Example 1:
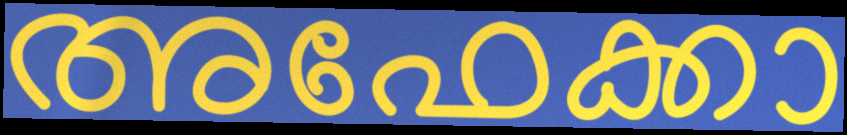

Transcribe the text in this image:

അഫേക്കാ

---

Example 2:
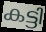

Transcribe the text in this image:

കട്ടി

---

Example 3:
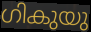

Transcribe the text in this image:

ഗികുയു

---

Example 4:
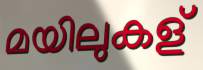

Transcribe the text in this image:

മയിലുകള്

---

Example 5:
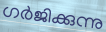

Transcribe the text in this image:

ഗർജിക്കുന്നു